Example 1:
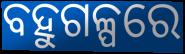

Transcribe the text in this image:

ବହୁଗଳ୍ପରେ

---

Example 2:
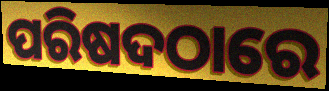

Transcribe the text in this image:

ପରିଷଦଠାରେ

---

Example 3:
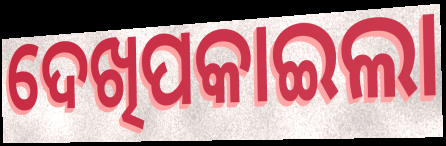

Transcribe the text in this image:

ଦେଖିପକାଇଲା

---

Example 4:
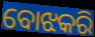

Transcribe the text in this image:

ବୋଝକରି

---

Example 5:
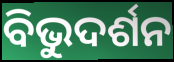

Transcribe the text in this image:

ବିଭୁଦର୍ଶନ